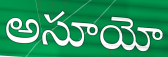
అసూయో